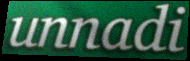
unnadi